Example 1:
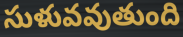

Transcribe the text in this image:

సుళువవుతుంది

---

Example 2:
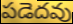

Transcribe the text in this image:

పడెదవు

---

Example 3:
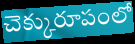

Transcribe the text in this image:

చెక్కురూపంలో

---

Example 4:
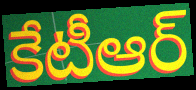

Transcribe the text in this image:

కేటీఆర్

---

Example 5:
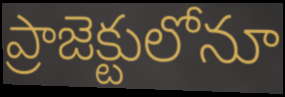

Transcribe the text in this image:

ప్రాజెక్టులోనూ